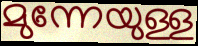
മുന്നേയുള്ള